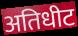
अतिधीट